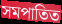
সমপাতিত